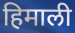
हिमाली